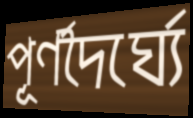
পূর্ণদৈর্ঘ্যে